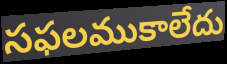
సఫలముకాలేదు